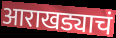
आराखड्याचं